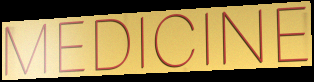
MEDICINE